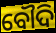
ବୌଦି